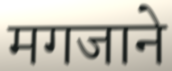
मगजाने